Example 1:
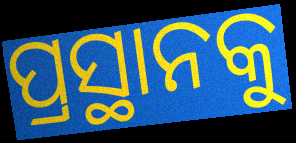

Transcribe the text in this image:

ପ୍ରସ୍ଥାନକୁ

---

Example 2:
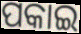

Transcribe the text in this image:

ପକାଇ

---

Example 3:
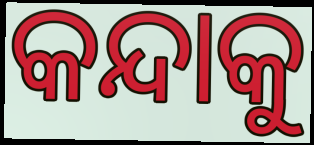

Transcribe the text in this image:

କନ୍ଦାକୁ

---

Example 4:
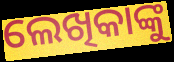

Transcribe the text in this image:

ଲେଖିକାଙ୍କୁ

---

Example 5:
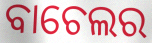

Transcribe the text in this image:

ବାଚେଲର